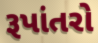
રૂપાંતરો